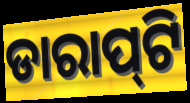
ଡାରାପ୍‌ଟି